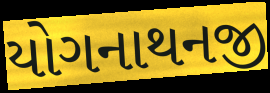
યોગનાથનજી